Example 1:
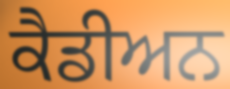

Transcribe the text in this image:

ਕੈਡੀਅਨ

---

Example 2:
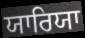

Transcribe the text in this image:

ਯਾਰਿਯਾ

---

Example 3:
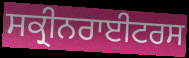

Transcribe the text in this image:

ਸਕ੍ਰੀਨਰਾਈਟਰਸ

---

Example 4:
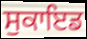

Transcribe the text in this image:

ਸੁਕਾਇਡ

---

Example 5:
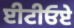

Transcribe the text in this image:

ਈਟੀਓਏ